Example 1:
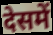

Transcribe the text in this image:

देसमें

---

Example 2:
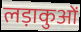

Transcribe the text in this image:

लड़ाकुओं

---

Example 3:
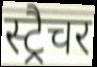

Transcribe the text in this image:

स्ट्रैचर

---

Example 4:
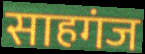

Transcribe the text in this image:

साहगंज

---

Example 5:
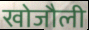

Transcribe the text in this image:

खोजौली